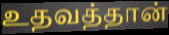
உதவத்தான்